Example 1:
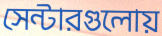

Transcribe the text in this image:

সেন্টারগুলোয়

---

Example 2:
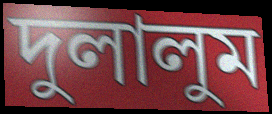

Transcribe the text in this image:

দুলালুম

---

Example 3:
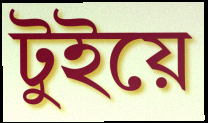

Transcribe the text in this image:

টুইয়ে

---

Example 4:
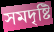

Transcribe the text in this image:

সমদৃষ্টি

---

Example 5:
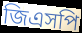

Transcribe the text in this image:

জিএসপি